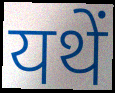
यथें